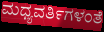
ಮಧ್ಯವರ್ತಿಗಳಂತೆ